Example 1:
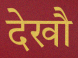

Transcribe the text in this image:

देखौ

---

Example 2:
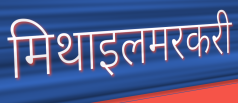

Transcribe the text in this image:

मिथाइलमरकरी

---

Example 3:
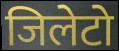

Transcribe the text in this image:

जिलेटो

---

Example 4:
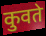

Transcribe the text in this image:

कुवते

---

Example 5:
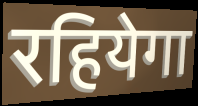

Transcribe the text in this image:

रहियेगा